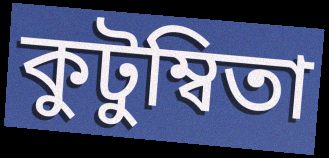
কুটুম্বিতা